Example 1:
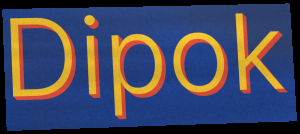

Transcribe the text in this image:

Dipok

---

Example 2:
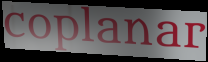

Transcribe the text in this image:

coplanar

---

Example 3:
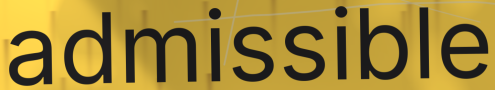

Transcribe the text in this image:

admissible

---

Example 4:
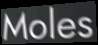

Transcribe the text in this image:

Moles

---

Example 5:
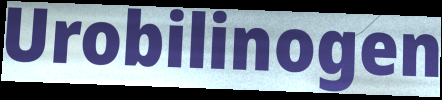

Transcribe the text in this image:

Urobilinogen